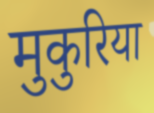
मुकुरिया